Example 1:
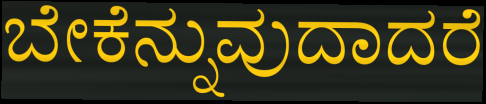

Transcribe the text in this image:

ಬೇಕೆನ್ನುವುದಾದರೆ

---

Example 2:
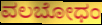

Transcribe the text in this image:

ವಲಬೋಧಂ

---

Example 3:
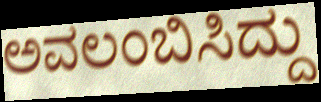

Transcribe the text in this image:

ಅವಲಂಬಿಸಿದ್ದು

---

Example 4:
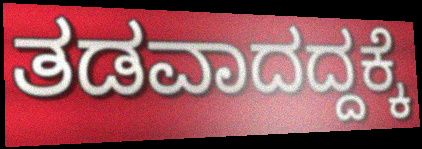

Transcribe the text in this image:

ತಡವಾದದ್ದಕ್ಕೆ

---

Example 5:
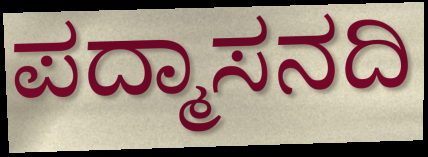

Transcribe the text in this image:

ಪದ್ಮಾಸನದಿ